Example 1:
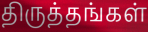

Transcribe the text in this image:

திருத்தங்கள்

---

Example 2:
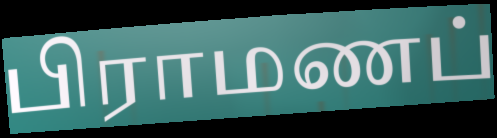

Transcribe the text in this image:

பிராமணப்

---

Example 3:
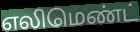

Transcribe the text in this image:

எலிமெண்ட்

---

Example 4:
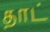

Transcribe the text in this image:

தாட்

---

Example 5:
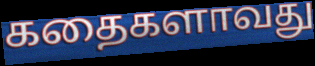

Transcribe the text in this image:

கதைகளாவது